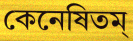
কেনেষিতম্